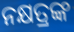
ନକ୍ଷତ୍ରଙ୍କ